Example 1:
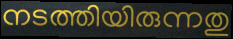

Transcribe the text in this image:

നടത്തിയിരുന്നതു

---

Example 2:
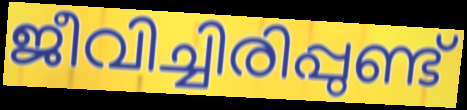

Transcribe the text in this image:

ജീവിച്ചിരിപ്പുണ്ട്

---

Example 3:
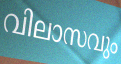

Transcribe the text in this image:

വിലാസവും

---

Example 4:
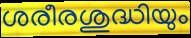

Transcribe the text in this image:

ശരീരശുദ്ധിയും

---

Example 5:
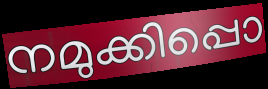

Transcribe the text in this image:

നമുക്കിപ്പൊ